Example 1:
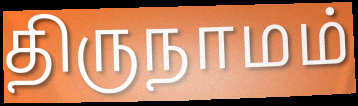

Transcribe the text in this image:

திருநாமம்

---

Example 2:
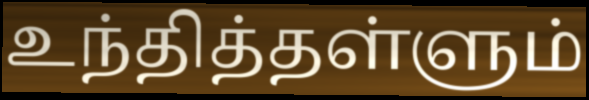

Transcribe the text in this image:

உந்தித்தள்ளும்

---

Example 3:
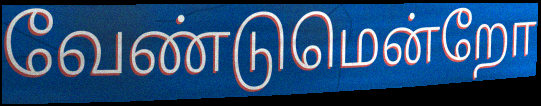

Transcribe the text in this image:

வேண்டுமென்றோ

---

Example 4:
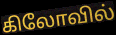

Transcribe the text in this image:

கிலோவில்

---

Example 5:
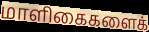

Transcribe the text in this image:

மாளிகைகளைக்